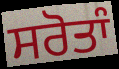
ਸਰੋਤਾੰ